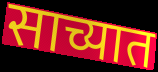
साच्यात